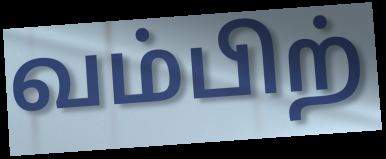
வம்பிற்